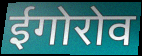
ईगोरोव